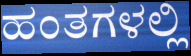
ಹಂತಗಳಲ್ಲಿ